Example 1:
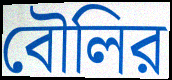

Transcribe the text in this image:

বৌলির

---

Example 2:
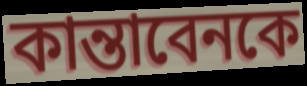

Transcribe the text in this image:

কান্তাবেনকে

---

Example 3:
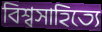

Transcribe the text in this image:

বিশ্বসাহিত্যে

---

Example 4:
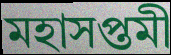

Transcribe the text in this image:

মহাসপ্তমী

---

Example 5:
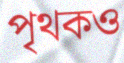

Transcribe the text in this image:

পৃথকও